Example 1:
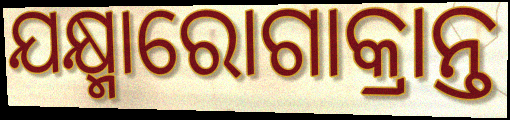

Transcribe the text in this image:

ଯକ୍ଷ୍ମାରୋଗାକ୍ରାନ୍ତ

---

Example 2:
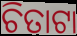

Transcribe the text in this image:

ଚିତାଟା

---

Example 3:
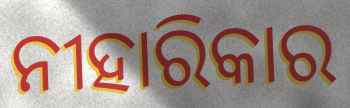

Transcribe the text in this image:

ନୀହାରିକାର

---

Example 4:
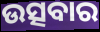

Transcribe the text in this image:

ଉତ୍ସବାର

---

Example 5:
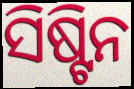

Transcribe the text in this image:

ସିଷ୍ଟିନ